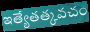
ఇత్యేతత్కవచం